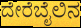
ದೇರೆಬೈಲಿನ